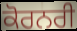
ਕੋਰਨਰੀ